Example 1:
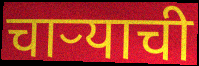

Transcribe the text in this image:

चाऱ्याची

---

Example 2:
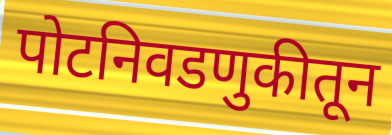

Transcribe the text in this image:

पोटनिवडणुकीतून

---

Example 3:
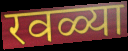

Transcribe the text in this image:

रवळ्या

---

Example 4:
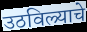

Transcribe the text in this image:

उठविल्याचे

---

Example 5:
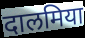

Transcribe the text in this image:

दालमिया